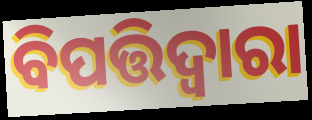
ବିପତ୍ତିଦ୍ୱାରା